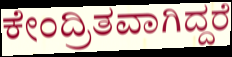
ಕೇಂದ್ರಿತವಾಗಿದ್ದರೆ